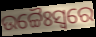
ଉଚ୍ଚୈଃସ୍ୱରେ